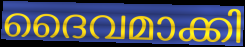
ദൈവമാക്കി